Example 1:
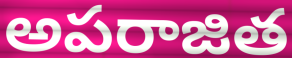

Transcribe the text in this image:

అపరాజిత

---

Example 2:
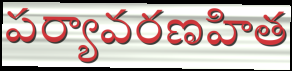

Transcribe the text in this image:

పర్యావరణహిత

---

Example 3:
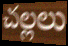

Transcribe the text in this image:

చల్లలు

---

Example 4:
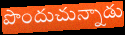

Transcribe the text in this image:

పొందుచున్నాడు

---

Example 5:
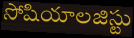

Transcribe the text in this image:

సోషియాలజిస్టు